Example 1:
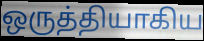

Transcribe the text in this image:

ஒருத்தியாகிய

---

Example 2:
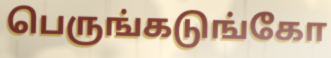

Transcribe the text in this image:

பெருங்கடுங்கோ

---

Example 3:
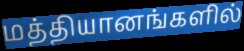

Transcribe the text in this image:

மத்தியானங்களில்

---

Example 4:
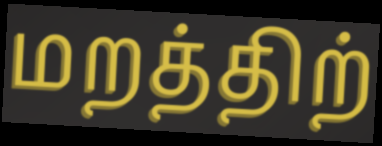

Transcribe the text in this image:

மறத்திற்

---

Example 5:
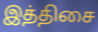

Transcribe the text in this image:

இத்திசை